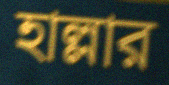
হাল্লার